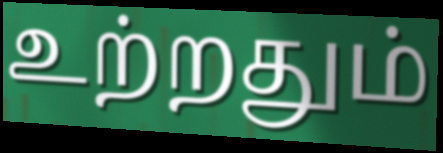
உற்றதும்